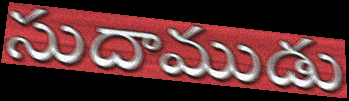
సుదాముడు